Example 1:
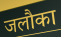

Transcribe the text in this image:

जलौका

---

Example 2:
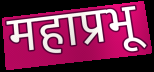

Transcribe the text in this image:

महाप्रभू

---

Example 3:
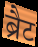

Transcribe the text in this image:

ब्रैट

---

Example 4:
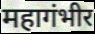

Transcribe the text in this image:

महागंभीर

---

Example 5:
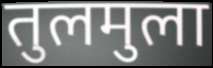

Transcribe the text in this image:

तुलमुला